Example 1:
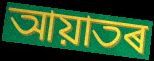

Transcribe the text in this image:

আয়াতৰ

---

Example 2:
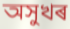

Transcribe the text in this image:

অসুখৰ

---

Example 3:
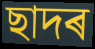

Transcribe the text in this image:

ছাদৰ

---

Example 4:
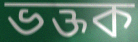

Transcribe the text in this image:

ভক্তক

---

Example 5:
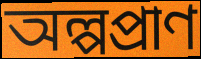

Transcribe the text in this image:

অল্পপ্ৰাণ